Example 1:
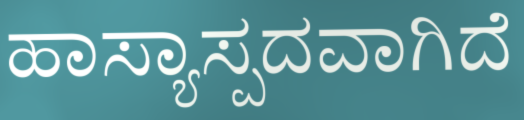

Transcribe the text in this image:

ಹಾಸ್ಯಾಸ್ಪದವಾಗಿದೆ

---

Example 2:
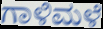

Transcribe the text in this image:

ಗಾಳಿಮಳೆ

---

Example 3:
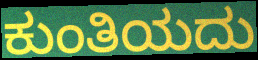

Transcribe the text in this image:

ಕುಂತಿಯದು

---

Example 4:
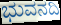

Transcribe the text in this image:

ಭುವನದಿ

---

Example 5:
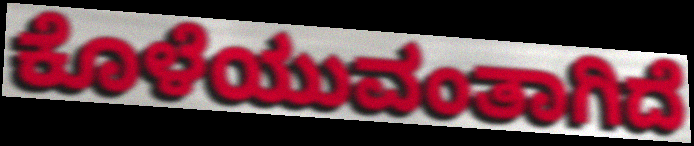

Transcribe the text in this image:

ಕೊಳೆಯುವಂತಾಗಿದೆ